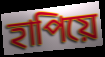
হাপিয়ে